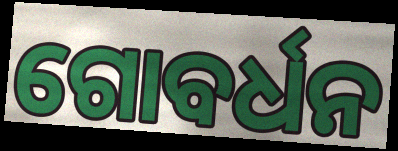
ଗୋବର୍ଧନ